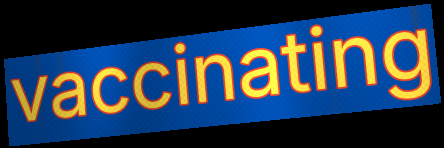
vaccinating